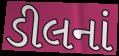
ડીલનાં